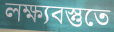
লক্ষ্যবস্তুতে